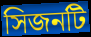
সিজনটি